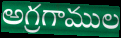
అగ్రగాముల